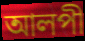
আলপী